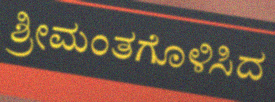
ಶ್ರೀಮಂತಗೊಳಿಸಿದ